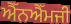
ਐੱਨਐੱਮਜੀ